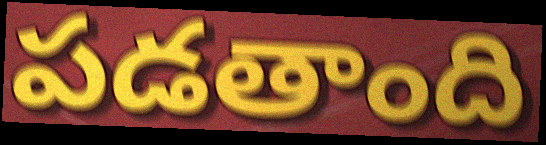
పడతాంది